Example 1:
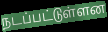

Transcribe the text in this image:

நடப்பட்டுள்ளன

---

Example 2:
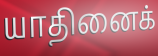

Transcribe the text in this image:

யாதினைக்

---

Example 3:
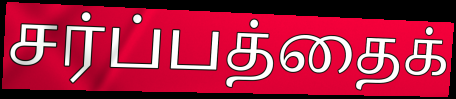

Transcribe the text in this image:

சர்ப்பத்தைக்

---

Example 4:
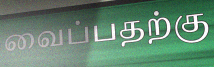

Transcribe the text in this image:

வைப்பதற்கு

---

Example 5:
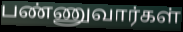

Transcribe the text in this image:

பண்ணுவார்கள்